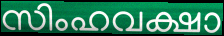
സിംഹവക്ഷാ